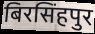
बिरसिंहपुर